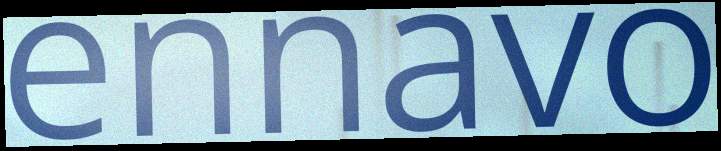
ennavo